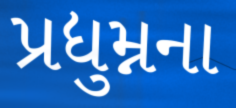
પ્રદ્યુમ્નના